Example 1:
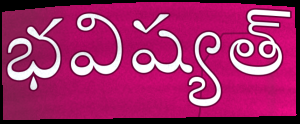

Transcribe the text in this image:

భవిష్యత్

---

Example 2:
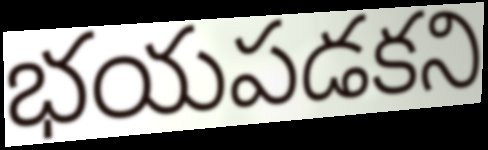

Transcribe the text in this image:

భయపడకని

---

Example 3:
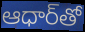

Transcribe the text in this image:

ఆధార్‌తో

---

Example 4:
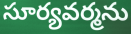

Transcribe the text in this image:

సూర్యవర్మను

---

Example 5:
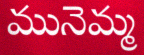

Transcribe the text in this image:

మునెమ్మ